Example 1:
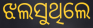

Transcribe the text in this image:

ଝଲସୁଥିଲେ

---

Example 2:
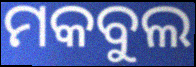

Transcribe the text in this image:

ମକବୁଲ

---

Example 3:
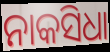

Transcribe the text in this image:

ନାକସିଧା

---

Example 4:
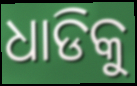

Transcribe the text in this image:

ଧାଡିକୁ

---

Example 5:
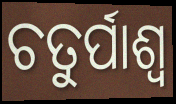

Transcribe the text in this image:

ଚତୁର୍ପାଶ୍ୱ